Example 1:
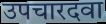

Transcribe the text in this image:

उपचारदवा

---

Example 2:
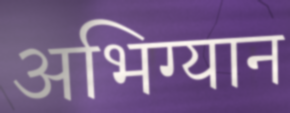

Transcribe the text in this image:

अभिग्यान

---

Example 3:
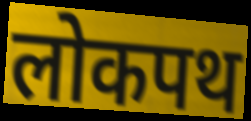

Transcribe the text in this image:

लोकपथ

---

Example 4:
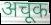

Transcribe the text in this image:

अचूक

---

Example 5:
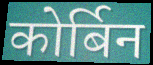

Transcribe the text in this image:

कोर्बिन